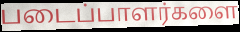
படைப்பாளர்களை